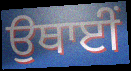
ਉਥਾਈਂ